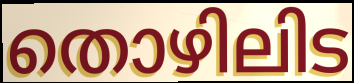
തൊഴിലിട